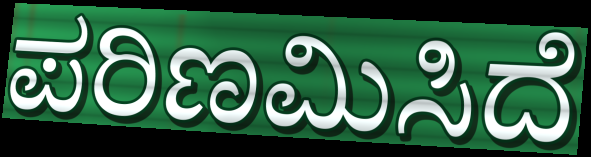
ಪರಿಣಮಿಸಿದೆ